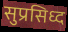
सुप्रसिध्द